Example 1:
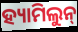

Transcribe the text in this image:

ହ୍ୟାମିଲୁନ୍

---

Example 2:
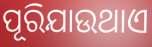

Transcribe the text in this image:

ପୂରିଯାଉଥାଏ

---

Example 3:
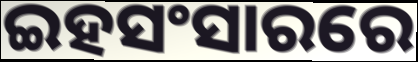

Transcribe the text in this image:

ଇହସଂସାରରେ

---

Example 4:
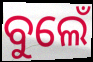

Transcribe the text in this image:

ବୁଲେଁ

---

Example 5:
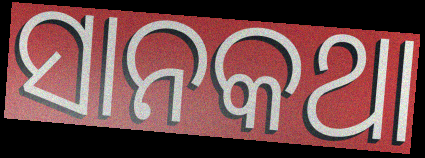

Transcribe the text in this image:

ସାନକଥା